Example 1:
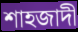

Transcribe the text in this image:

শাহজাদী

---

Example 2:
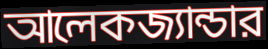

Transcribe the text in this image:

আলেকজ্যান্ডার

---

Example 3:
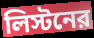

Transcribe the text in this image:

লিস্টনের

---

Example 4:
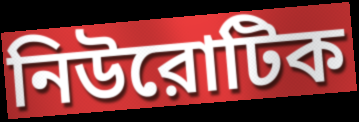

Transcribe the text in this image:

নিউরোটিক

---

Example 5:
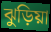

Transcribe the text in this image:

ঝুড়িয়া